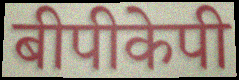
बीपीकेपी